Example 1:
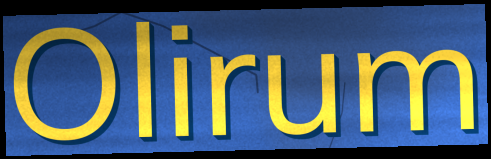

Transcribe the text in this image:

Olirum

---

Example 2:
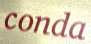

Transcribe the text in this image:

conda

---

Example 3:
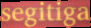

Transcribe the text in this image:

segitiga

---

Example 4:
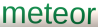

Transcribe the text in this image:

meteor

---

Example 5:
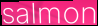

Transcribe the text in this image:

salmon